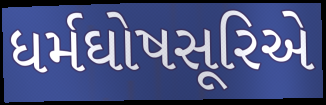
ધર્મઘોષસૂરિએ